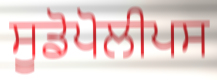
ਸੂਡੋਪੋਲੀਪਸ